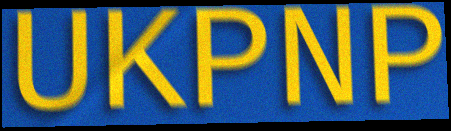
UKPNP